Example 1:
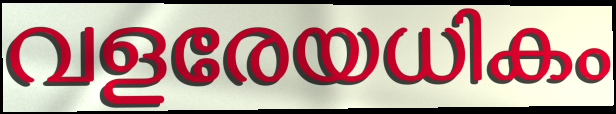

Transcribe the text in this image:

വളരേയധികം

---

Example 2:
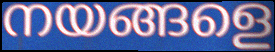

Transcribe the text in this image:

നയങ്ങളെ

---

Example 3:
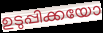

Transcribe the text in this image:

ഉടുപ്പിക്കയോ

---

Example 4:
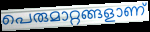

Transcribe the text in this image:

പെരുമാറ്റങ്ങളാണ്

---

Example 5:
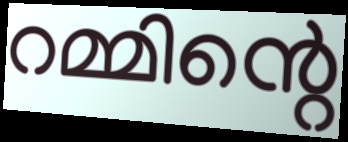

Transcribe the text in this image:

റമ്മിന്റെ